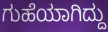
ಗುಹೆಯಾಗಿದ್ದು